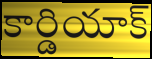
కార్డియాక్